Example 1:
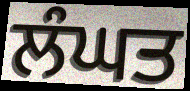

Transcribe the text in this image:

ਲੰਘਤ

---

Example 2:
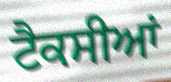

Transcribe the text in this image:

ਟੈਕਸੀਆਂ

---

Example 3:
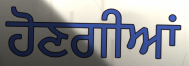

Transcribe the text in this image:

ਹੋਣਗੀਆਂ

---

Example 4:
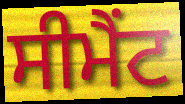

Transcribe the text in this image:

ਸੀਮੈੰਟ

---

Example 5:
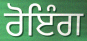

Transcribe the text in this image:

ਰੋਇੰਗ